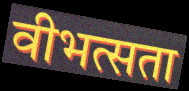
वीभत्सता